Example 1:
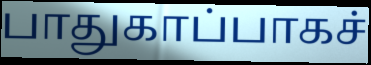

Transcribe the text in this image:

பாதுகாப்பாகச்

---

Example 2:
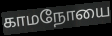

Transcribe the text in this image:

காமநோயை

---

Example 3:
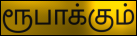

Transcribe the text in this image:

ரூபாக்கும்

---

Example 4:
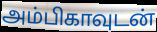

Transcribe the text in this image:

அம்பிகாவுடன்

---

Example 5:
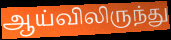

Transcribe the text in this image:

ஆய்விலிருந்து